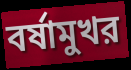
বর্ষামুখর